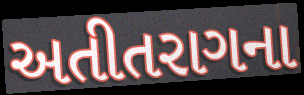
અતીતરાગના